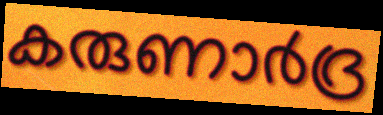
കരുണാർദ്ര